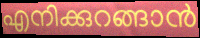
എനിക്കുറങ്ങാൻ